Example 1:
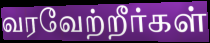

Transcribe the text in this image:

வரவேற்றீர்கள்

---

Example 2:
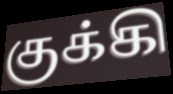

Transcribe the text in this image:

குக்கி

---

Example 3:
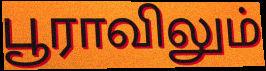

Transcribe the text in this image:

பூராவிலும்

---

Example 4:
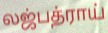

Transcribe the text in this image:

லஜ்பத்ராய்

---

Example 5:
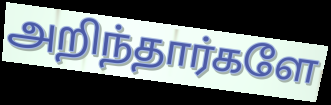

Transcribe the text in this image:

அறிந்தார்களே